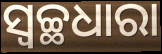
ସ୍ୱଚ୍ଛଧାରା